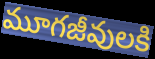
మూగజీవులకి